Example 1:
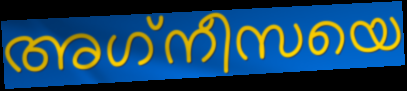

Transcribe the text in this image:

അഗ്‌നീസയെ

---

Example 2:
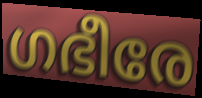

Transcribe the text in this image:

ഗഭീരേ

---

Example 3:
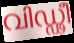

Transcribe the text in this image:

വിഡ്ഢീ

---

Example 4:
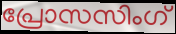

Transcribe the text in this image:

പ്രോസസിംഗ്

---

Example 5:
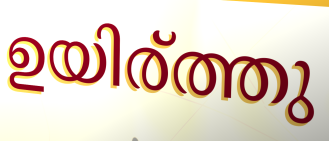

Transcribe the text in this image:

ഉയിര്ത്തു